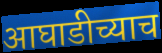
आघाडीच्याच